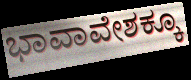
ಭಾವಾವೇಶಕ್ಕೂ